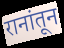
रानांतून